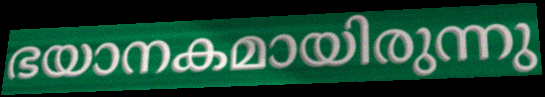
ഭയാനകമായിരുന്നു